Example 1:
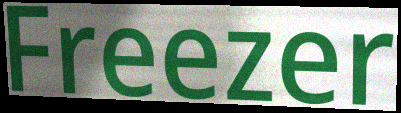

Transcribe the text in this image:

Freezer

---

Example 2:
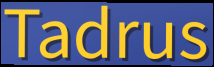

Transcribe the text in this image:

Tadrus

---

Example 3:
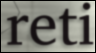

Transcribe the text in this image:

reti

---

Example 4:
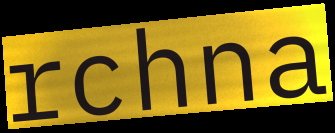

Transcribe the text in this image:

rchna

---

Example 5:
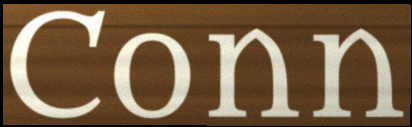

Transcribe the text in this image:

Conn